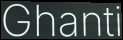
Ghanti